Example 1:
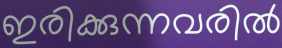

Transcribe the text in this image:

ഇരിക്കുന്നവരിൽ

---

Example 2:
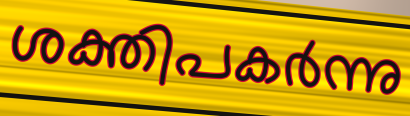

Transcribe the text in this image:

ശക്തിപകർന്നു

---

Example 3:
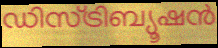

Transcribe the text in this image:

ഡിസ്ട്രിബ്യൂഷൻ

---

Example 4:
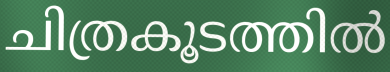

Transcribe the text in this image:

ചിത്രകൂടത്തിൽ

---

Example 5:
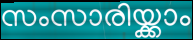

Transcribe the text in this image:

സംസാരിയ്ക്കാം